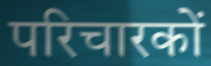
परिचारकों